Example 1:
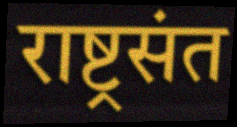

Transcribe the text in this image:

राष्ट्रसंत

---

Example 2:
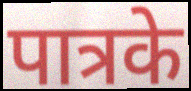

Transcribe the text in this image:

पात्रके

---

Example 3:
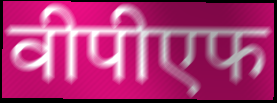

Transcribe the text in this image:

वीपीएफ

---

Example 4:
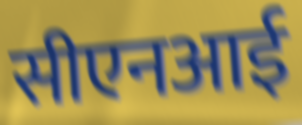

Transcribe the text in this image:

सीएनआई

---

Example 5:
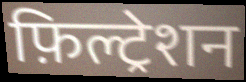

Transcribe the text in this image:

फ़िल्ट्रेशन